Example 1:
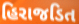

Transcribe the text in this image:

હિરાજડિત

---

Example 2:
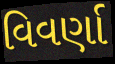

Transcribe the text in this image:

વિવર્ણા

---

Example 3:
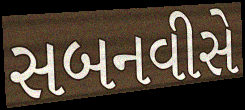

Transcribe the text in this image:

સબનવીસે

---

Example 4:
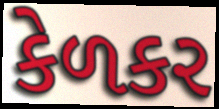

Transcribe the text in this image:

કેળકર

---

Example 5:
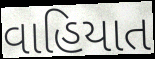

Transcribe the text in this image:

વાહિયાત